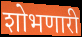
शोभणारी